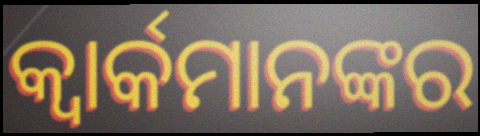
କ୍ୱାର୍କମାନଙ୍କର